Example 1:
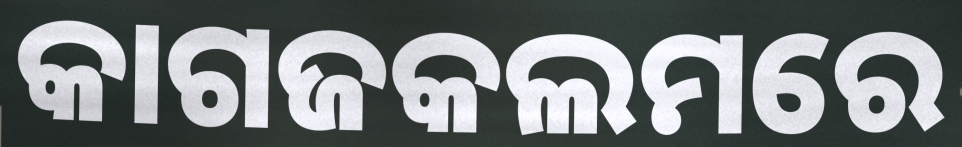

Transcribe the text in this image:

କାଗଜକଲମରେ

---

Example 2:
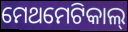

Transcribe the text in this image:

ମେଥମେଟିକାଲ୍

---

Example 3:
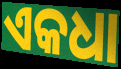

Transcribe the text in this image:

ଏକଧା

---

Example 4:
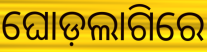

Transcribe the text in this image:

ଘୋଡ଼ଲାଗିରେ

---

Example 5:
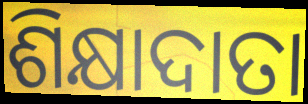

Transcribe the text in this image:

ଶିକ୍ଷାଦାତା